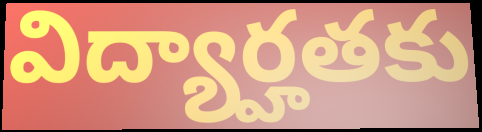
విద్యార్హతకు